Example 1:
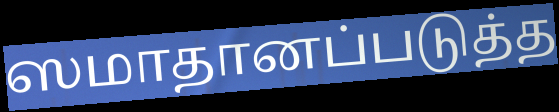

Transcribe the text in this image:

ஸமாதானப்படுத்த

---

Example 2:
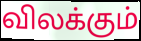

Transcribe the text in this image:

விலக்கும்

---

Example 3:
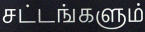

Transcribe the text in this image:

சட்டங்களும்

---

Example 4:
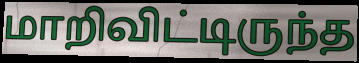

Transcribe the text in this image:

மாறிவிட்டிருந்த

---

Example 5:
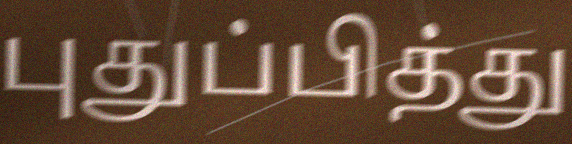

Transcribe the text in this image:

புதுப்பித்து